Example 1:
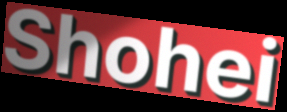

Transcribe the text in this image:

Shohei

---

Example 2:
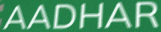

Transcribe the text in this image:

AADHAR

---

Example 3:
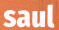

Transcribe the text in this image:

saul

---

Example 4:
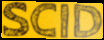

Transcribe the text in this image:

SCID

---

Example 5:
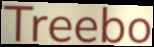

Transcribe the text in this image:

Treebo